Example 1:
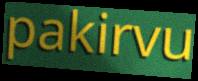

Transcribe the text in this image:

pakirvu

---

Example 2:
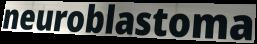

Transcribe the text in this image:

neuroblastoma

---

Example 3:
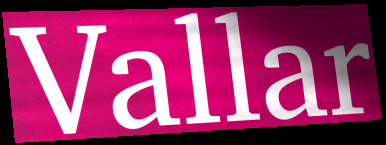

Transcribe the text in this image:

Vallar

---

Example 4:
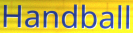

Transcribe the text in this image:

Handball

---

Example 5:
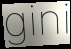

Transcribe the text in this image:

gini